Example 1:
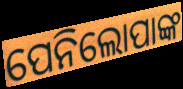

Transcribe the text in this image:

ପେନିଲୋପାଙ୍କ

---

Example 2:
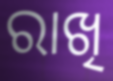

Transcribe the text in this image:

ରାଖି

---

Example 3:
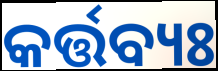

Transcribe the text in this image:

କର୍ତ୍ତବ୍ୟଃ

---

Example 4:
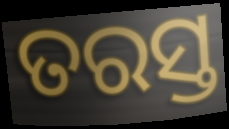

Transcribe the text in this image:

ତରସ୍ତ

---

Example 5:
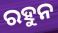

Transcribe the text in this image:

ରହୁନ